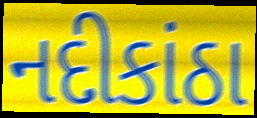
નદીકાંઠા